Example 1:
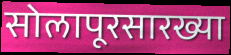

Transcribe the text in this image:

सोलापूरसारख्या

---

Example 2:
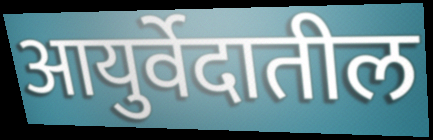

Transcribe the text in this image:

आयुर्वेदातील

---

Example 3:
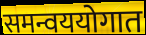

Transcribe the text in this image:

समन्वययोगात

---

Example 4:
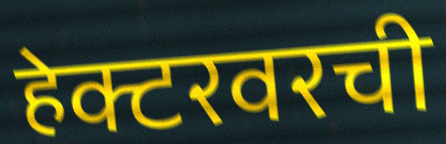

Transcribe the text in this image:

हेक्टरवरची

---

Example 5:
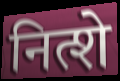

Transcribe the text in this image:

नित्शे